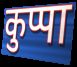
कुप्पा